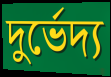
দুর্ভেদ্য